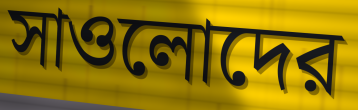
সাওলোদের